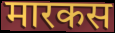
मारकस